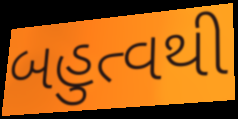
બહુત્વથી